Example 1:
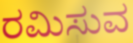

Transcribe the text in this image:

ರಮಿಸುವ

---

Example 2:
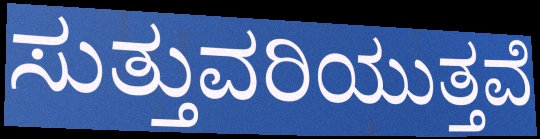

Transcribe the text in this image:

ಸುತ್ತುವರಿಯುತ್ತವೆ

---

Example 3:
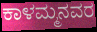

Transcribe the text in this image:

ಕಾಳಮ್ಮನವರ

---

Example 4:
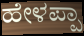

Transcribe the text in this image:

ಹೇಳಪ್ಪಾ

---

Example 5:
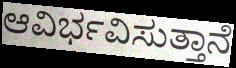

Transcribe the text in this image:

ಆವಿರ್ಭವಿಸುತ್ತಾನೆ